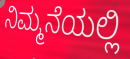
ನಿಮ್ಮನೆಯಲ್ಲಿ